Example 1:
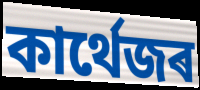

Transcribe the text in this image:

কাৰ্থেজৰ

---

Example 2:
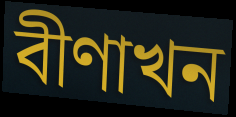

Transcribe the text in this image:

বীণাখন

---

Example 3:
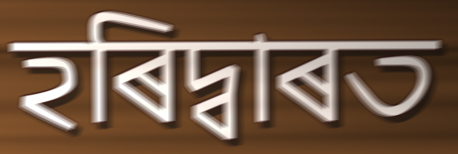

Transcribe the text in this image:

হৰিদ্বাৰত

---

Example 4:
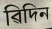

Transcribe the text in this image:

ৱিদিন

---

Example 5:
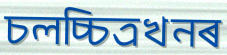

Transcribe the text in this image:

চলচ্চিত্ৰখনৰ